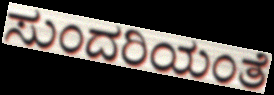
ಸುಂದರಿಯಂತೆ